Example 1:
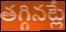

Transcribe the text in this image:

తగ్గినట్లే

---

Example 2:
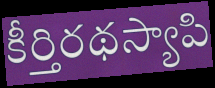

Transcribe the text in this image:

కీర్తిరథస్యాపి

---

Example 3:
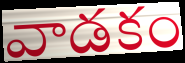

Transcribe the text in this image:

వాడకం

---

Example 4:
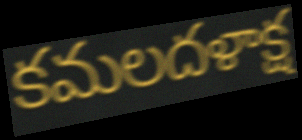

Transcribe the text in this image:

కమలదళాక్ష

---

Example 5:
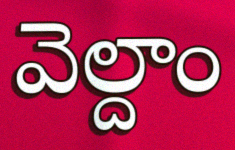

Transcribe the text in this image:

వెల్దాం